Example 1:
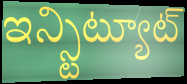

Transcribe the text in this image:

ఇన్స్టిట్యూట్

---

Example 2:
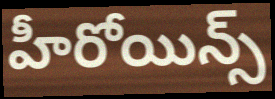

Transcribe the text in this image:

హీరోయిన్స్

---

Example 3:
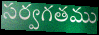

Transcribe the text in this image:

సర్వగతము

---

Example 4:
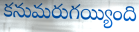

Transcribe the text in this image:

కనుమరుగయ్యింది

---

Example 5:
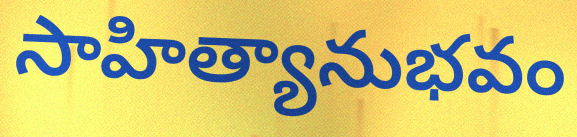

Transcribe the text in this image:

సాహిత్యానుభవం